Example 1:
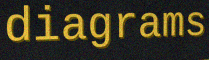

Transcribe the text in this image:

diagrams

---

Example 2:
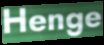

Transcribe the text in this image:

Henge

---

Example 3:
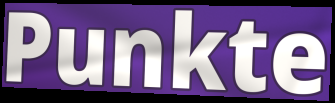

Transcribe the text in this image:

Punkte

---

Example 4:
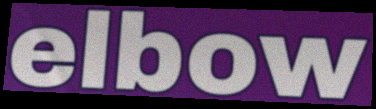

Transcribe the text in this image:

elbow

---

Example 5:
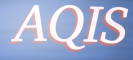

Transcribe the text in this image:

AQIS